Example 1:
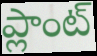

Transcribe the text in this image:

ప్లాంట్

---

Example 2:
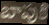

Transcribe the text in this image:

బాపుకి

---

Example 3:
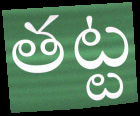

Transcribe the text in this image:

తట్ట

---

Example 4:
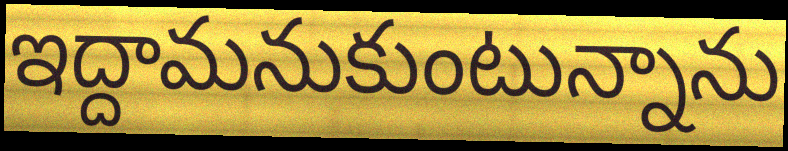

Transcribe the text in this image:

ఇద్దామనుకుంటున్నాను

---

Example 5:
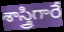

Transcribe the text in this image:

శాస్త్రిగారే